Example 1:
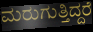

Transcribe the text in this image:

ಮರುಗುತ್ತಿದ್ದರೆ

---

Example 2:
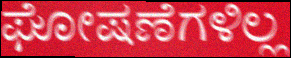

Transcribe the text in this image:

ಘೋಷಣೆಗಳಿಲ್ಲ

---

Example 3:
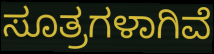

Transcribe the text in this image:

ಸೂತ್ರಗಳಾಗಿವೆ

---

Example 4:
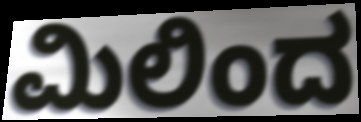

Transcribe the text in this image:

ಮಿಲಿಂದ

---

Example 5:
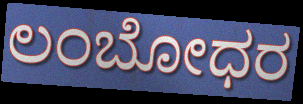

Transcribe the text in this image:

ಲಂಬೋಧರ